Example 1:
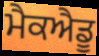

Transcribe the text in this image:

ਮੈਕਐਡੂ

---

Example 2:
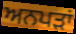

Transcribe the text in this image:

ਅਨਪੜਾਂ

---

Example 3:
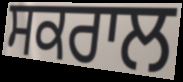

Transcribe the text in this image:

ਸਕਰਾਲ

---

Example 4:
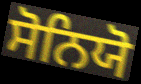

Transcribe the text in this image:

ਸੋਨਿਯੋ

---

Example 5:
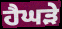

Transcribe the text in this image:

ਹੈਘੜੇ